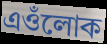
এওঁলোক